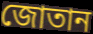
জোতান